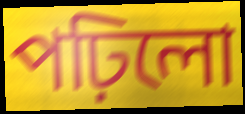
পঢ়িলো